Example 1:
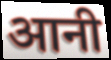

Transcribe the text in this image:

आनी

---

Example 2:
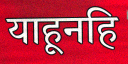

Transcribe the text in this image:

याहूनहि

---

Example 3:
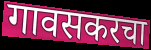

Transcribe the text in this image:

गावसकरचा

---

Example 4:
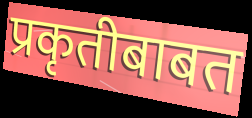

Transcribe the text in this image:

प्रकृतीबाबत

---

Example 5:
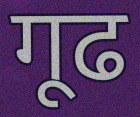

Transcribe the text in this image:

गूढ